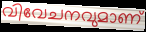
വിവേചനവുമാണ്